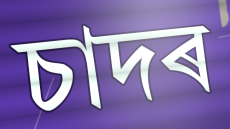
চাদৰ